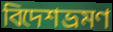
বিদেশভ্রমণ